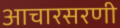
आचारसरणी